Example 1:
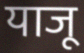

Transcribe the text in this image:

याजू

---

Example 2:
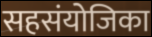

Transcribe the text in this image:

सहसंयोजिका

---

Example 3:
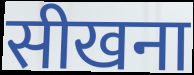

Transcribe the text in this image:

सीखना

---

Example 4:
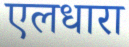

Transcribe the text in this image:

एलधारा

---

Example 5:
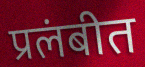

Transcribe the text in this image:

प्रलंबीत